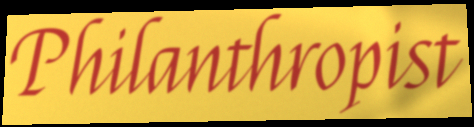
Philanthropist